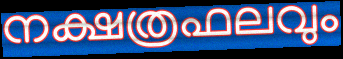
നക്ഷത്രഫലവും